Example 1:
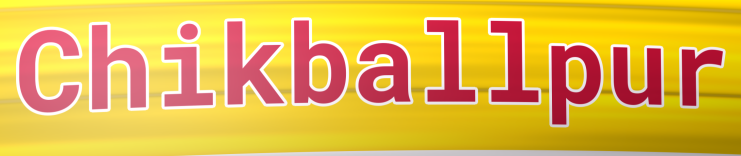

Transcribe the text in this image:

Chikballpur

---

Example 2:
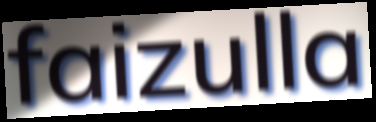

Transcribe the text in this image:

faizulla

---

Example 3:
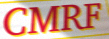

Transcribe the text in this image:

CMRF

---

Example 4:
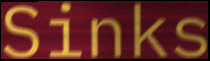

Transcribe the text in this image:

Sinks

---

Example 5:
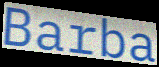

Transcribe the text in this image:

Barba